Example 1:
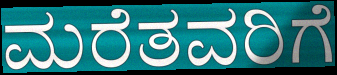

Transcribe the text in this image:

ಮರೆತವರಿಗೆ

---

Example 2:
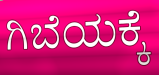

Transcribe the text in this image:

ಗಿಬೆಯಕ್ಕೆ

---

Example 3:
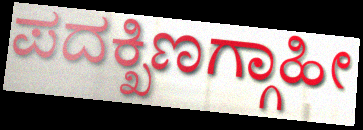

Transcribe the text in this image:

ಪದಕ್ಖಿಣಗ್ಗಾಹೀ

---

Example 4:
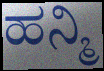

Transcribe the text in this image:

ಹನ್ಮಿ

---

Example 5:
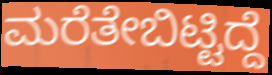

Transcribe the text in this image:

ಮರೆತೇಬಿಟ್ಟಿದ್ದೆ